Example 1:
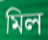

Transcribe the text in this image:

মিল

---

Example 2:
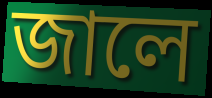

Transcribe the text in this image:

জালে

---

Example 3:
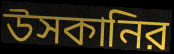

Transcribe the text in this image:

উসকানির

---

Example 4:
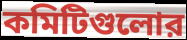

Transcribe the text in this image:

কমিটিগুলোর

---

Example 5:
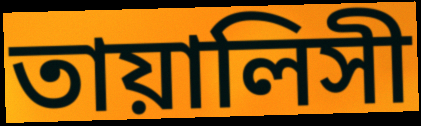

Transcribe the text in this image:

তায়ালিসী